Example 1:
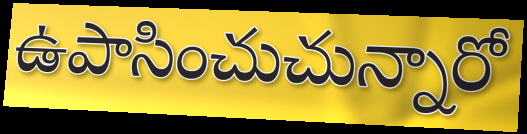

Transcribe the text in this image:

ఉపాసించుచున్నారో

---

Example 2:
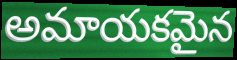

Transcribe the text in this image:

అమాయకమైన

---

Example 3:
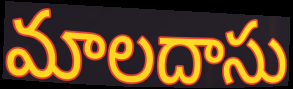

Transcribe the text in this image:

మాలదాసు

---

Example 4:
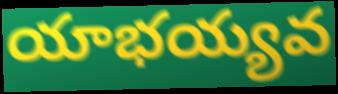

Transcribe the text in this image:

యాభయ్యవ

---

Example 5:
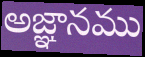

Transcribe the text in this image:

అజ్ఞానము